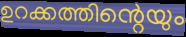
ഉറക്കത്തിന്റെയും